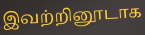
இவற்றினூடாக